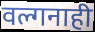
वल्गनाही